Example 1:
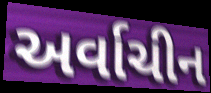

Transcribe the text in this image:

અર્વાચીન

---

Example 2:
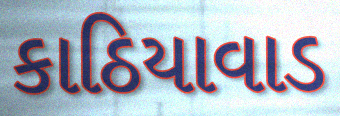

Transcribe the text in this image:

કાઠિયાવાડ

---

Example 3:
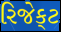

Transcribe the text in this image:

રિજેક્‌ટ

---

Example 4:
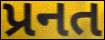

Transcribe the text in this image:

પ્રનત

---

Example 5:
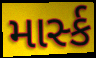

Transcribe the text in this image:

માર્સ્ક